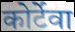
कोर्टेवा